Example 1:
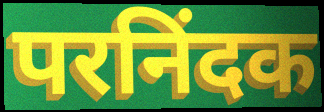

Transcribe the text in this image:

परनिंदक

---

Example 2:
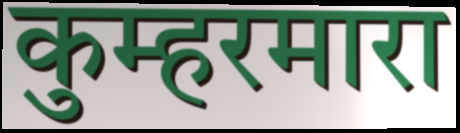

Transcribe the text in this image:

कुम्हरमारा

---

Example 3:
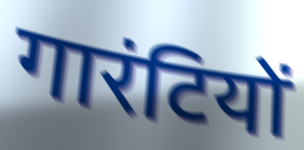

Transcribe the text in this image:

गारंटियों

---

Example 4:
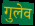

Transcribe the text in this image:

गुलेव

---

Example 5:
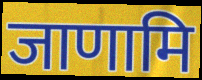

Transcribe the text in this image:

जाणामि